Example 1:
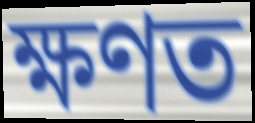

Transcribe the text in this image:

ক্ষণত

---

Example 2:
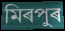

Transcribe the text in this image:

মিৰপুৰ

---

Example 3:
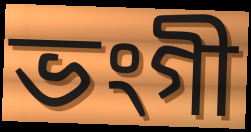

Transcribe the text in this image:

ভংগী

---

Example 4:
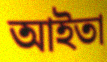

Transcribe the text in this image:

আইতা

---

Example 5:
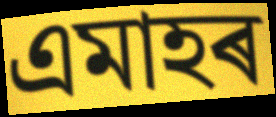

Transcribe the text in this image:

এমাহৰ